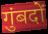
गुंबदों